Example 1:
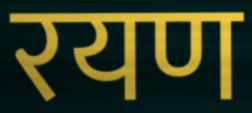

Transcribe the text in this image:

रयण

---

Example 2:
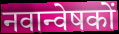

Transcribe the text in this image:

नवान्वेषकों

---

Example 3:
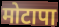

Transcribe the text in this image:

मोटापा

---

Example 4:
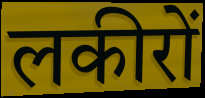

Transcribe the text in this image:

लकीरों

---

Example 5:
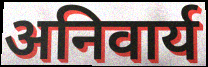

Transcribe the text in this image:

अनिवार्य